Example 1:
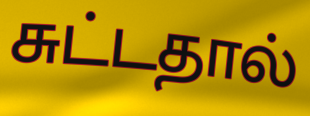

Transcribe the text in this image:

சுட்டதால்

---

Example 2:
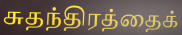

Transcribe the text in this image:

சுதந்திரத்தைக்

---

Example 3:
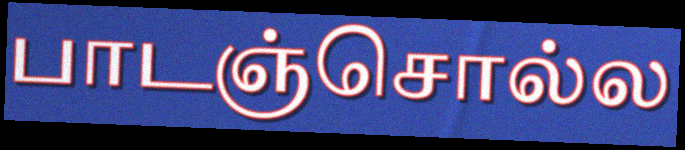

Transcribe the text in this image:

பாடஞ்சொல்ல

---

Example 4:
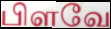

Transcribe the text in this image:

பிளவே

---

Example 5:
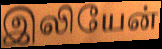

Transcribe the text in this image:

இலியேன்